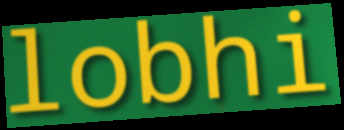
lobhi